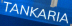
TANKARIA